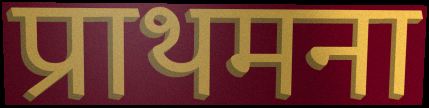
प्राथमना